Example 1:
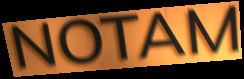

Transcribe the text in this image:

NOTAM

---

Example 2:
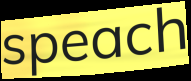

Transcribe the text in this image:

speach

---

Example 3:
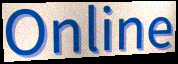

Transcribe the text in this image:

Online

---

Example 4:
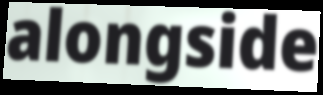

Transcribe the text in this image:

alongside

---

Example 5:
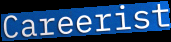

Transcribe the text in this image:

Careerist